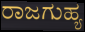
ರಾಜಗುಹ್ಯ